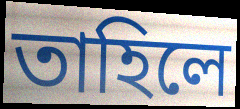
তাহিলে